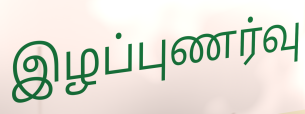
இழப்புணர்வு